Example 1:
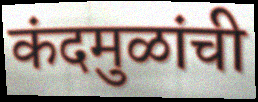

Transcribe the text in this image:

कंदमुळांची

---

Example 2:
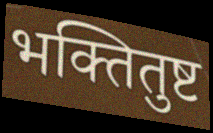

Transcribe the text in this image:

भक्तितुष्ट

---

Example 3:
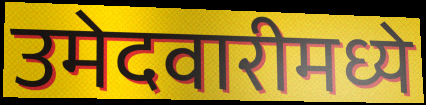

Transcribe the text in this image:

उमेदवारीमध्ये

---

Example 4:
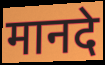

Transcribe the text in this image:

मानदे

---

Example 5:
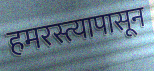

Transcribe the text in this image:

हमरस्त्यापासून